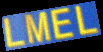
LMEL